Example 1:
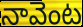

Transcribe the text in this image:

నావెంట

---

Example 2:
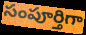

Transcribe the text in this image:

సంపూర్తిగా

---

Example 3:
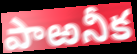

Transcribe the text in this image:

పాఱనీక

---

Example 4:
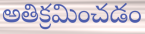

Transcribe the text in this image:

అతిక్రమించడం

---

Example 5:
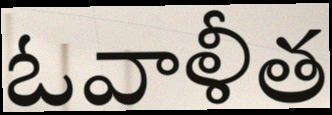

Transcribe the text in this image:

ఓవాళీత